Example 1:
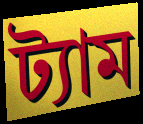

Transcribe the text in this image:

ট্যাম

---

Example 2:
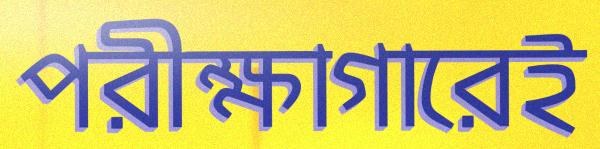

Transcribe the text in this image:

পরীক্ষাগারেই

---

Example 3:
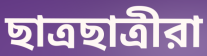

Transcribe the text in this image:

ছাত্রছাত্রীরা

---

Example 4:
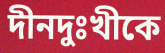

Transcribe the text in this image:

দীনদুঃখীকে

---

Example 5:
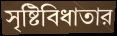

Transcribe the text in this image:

সৃষ্টিবিধাতার